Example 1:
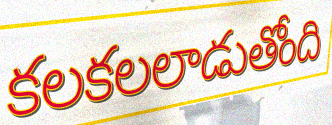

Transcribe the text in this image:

కలకలలాడుతోంది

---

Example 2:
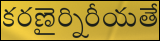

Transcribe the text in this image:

కరణైర్నిరీయతే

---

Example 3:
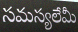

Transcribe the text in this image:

సమస్యలేమీ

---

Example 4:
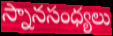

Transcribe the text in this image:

స్నానసంధ్యలు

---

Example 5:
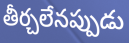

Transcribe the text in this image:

తీర్చలేనప్పుడు